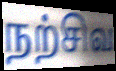
நற்சிவ